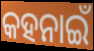
କହନାଇଁ